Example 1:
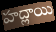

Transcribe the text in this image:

హద్లాయి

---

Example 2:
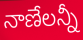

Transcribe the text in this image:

నాణేలన్నీ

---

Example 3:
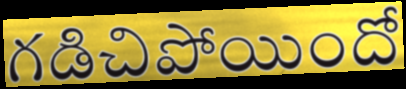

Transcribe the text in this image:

గడిచిపోయిందో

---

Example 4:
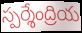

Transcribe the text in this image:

స్పర్శేంద్రియ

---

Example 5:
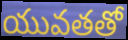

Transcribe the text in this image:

యువతతో